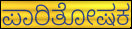
ಪಾರಿತೋಷಕ